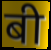
बी